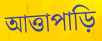
আত্তাপাড়ি